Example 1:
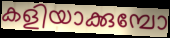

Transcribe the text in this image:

കളിയാക്കുമ്പോ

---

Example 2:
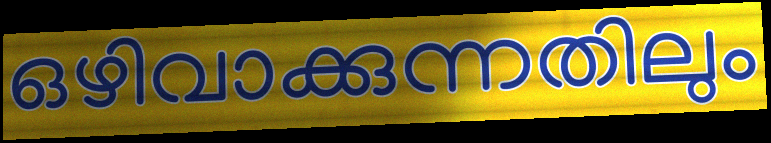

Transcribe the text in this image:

ഒഴിവാക്കുന്നതിലും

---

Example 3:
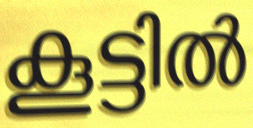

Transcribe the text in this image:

കൂട്ടിൽ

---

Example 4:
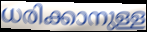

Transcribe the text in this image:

ധരിക്കാനുള്ള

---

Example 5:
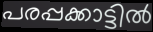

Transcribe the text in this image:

പരപ്പക്കാട്ടിൽ